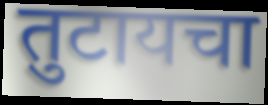
तुटायचा